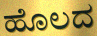
ಹೊಲದ